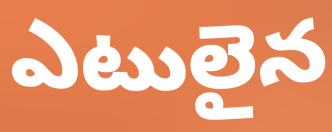
ఎటులైన